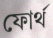
ফোর্থ